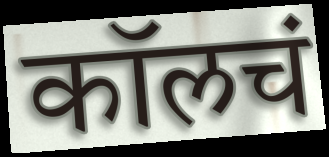
कॉलचं